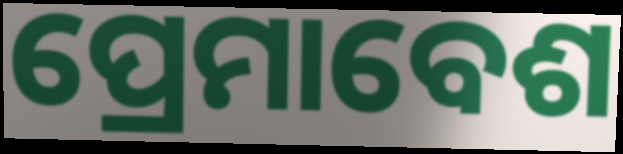
ପ୍ରେମାବେଶ